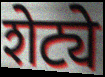
शेट्ये